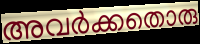
അവർക്കതൊരു